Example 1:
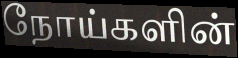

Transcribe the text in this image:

நோய்களின்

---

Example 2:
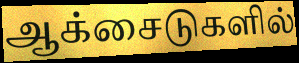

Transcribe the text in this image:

ஆக்சைடுகளில்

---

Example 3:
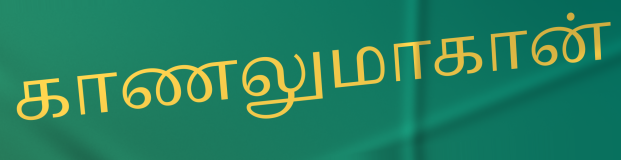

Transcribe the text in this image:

காணலுமாகான்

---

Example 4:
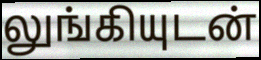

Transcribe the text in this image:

லுங்கியுடன்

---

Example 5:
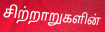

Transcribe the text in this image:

சிற்றாறுகளின்